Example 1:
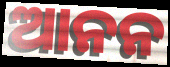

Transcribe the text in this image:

ଆନନ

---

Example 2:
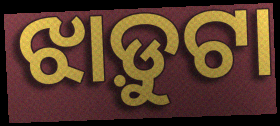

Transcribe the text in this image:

ଝାଡ଼ୁଟା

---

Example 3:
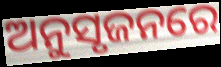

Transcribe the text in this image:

ଅନୁସୃଜନରେ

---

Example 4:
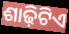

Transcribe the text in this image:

ଶାଢ଼ିଟିଏ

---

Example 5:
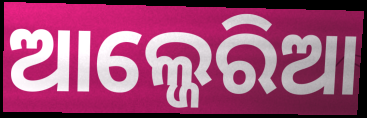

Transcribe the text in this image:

ଆଲ୍ଜେରିଆ